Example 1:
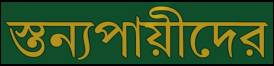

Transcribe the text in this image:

স্তন্যপায়ীদের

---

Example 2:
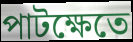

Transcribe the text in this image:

পাটক্ষেতে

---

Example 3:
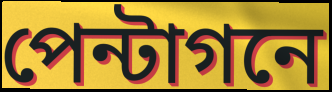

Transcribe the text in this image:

পেন্টাগনে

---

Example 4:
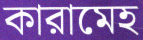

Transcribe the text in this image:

কারামেহ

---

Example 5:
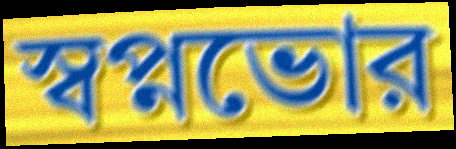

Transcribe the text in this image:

স্বপ্নভোর